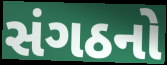
સંગઠનો